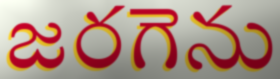
జరగెను